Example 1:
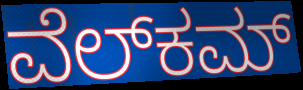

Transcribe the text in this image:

ವೆಲ್‍ಕಮ್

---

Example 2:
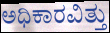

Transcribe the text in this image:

ಅಧಿಕಾರವಿತ್ತು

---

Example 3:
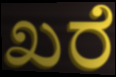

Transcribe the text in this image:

ಖರೆ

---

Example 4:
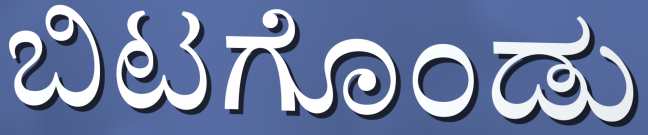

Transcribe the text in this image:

ಬಿಟಗೊಂಡು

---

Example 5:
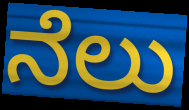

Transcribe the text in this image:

ನೆಲು